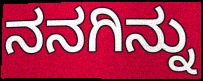
ನನಗಿನ್ನು